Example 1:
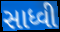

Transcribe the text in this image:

સાધ્વી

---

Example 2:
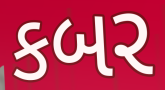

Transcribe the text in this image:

કબર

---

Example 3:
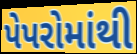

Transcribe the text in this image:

પેપરોમાંથી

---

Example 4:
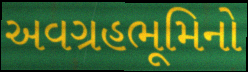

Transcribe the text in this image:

અવગ્રહભૂમિનો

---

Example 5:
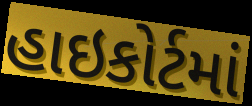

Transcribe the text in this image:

હાઇકોર્ટમાં